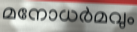
മനോധർമവും